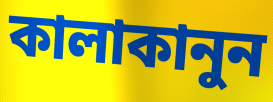
কালাকানুন